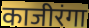
काजीरंगा